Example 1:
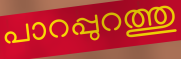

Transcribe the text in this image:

പാറപ്പുറത്തു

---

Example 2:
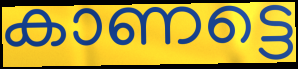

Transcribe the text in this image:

കാണട്ടെ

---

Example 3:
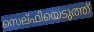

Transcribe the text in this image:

സെല്ഫിയെടുത്ത്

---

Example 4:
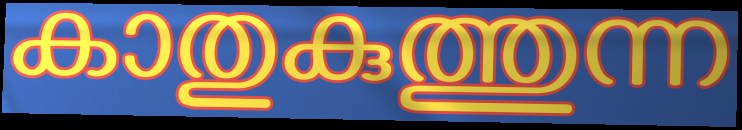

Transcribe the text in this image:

കാതുകുത്തുന്ന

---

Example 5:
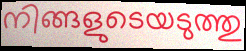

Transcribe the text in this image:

നിങ്ങളുടെയടുത്തു